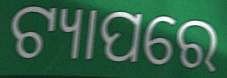
ଟ୍ୟାପରେ